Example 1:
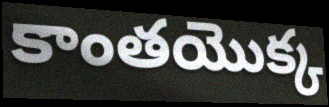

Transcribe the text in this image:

కాంతయొక్క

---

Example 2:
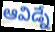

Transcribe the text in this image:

ఆవిడ్నే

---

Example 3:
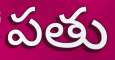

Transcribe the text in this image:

పతు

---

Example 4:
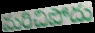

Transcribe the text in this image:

మరిచిపోదు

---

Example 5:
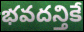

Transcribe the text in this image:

భవదన్తికే